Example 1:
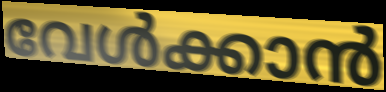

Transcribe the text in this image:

വേൾക്കാൻ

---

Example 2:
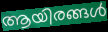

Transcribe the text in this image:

ആയിരങ്ങൾ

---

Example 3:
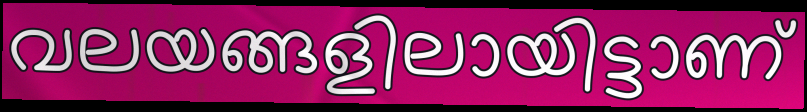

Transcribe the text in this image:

വലയങ്ങളിലായിട്ടാണ്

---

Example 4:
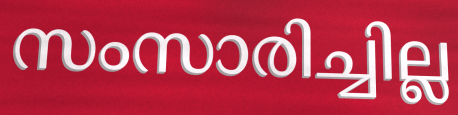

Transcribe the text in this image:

സംസാരിച്ചില്ല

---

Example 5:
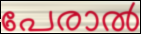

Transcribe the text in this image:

പേരാൽ